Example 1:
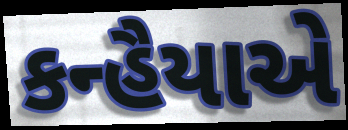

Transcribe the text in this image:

કન્હૈયાએ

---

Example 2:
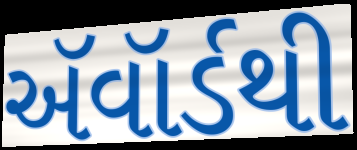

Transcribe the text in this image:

ઍવૉર્ડથી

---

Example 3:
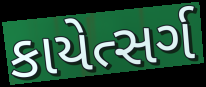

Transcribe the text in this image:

કાયેત્સર્ગ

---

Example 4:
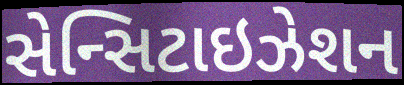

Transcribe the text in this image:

સેન્સિટાઇઝેશન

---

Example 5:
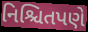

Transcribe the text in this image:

નિશ્ચિતપણે